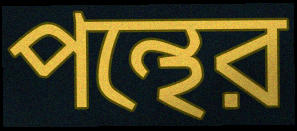
পন্থের